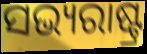
ସଭ୍ୟରାଷ୍ଟ୍ର